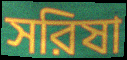
সরিষা